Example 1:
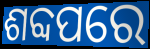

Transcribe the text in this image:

ଶବ୍ଦପରେ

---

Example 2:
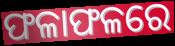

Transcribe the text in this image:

ଫଳାଫଳରେ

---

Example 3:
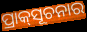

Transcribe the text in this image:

ପ୍ରାକ୍‌ସୂଚନାର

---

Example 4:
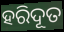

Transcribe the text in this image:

ହରିଦୂତ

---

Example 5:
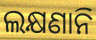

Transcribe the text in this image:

ଲକ୍ଷଣାନି